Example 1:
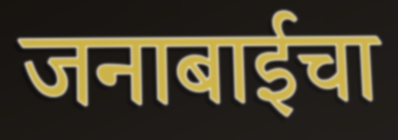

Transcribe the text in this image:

जनाबाईचा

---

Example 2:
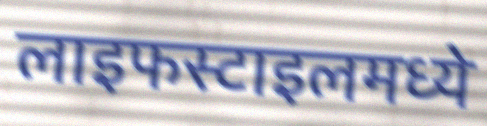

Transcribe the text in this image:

लाइफस्टाइलमध्ये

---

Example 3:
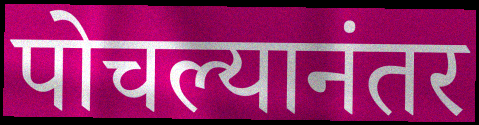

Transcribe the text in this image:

पोचल्यानंतर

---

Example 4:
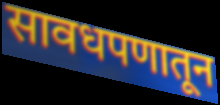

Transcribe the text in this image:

सावधपणातून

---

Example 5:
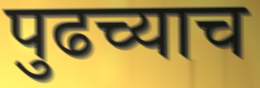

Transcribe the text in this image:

पुढच्याच